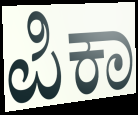
ಪಿಕಾ